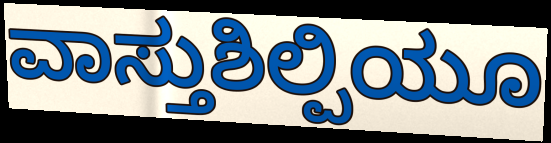
ವಾಸ್ತುಶಿಲ್ಪಿಯೂ